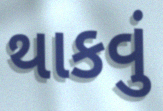
થાકવું